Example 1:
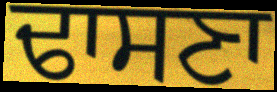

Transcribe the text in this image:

ਢਾਸਣਾ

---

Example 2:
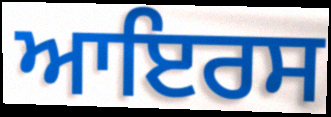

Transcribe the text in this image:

ਆਇਰਸ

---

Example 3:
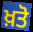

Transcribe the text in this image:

ਖ਼ਤੋ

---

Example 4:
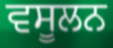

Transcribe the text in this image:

ਵਸੂਲਨ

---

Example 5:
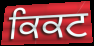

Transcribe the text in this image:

ਕਿਕਟ